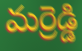
మర్రెడ్డి